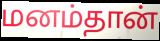
மனம்தான்